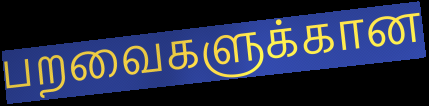
பறவைகளுக்கான